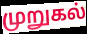
முறுகல்